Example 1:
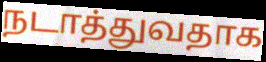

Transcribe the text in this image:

நடாத்துவதாக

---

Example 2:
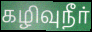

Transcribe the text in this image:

கழிவுநீர்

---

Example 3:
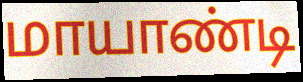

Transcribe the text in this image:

மாயாண்டி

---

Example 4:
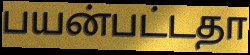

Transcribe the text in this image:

பயன்பட்டதா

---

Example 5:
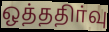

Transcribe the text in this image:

ஒத்ததிர்வு